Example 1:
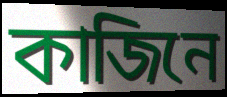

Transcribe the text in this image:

কাজিনে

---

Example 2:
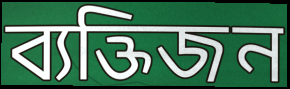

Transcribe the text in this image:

ব্যক্তিজন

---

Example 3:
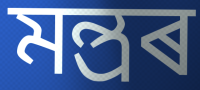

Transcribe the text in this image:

মন্ত্ৰৰ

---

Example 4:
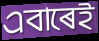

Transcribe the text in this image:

এবাৰেই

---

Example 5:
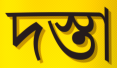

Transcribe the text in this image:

দস্তা